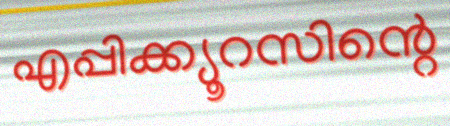
എപ്പിക്ക്യൂറസിന്റെ